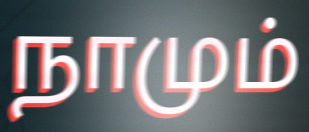
நாமும்